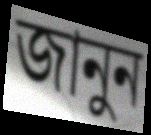
জানুন